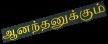
ஆனந்தனுக்கும்